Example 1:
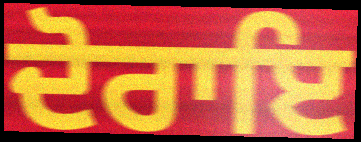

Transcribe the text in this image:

ਦੋਰਾਇ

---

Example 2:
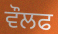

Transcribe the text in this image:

ਵੌਲਫ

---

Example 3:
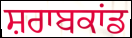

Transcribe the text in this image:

ਸ਼ਰਾਬਕਾਂਡ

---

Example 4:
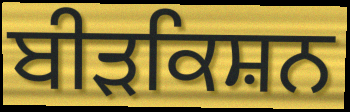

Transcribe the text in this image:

ਬੀੜਕਿਸ਼ਨ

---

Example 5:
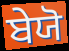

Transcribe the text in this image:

ਬੇਯੋ